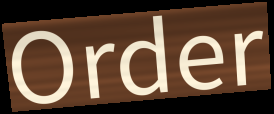
Order